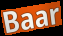
Baar